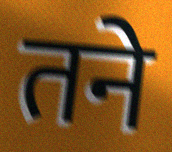
तने